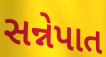
સન્નેપાત